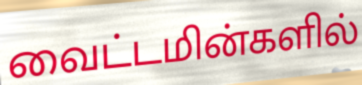
வைட்டமின்களில்